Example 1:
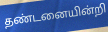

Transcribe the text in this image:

தண்டனையின்றி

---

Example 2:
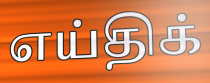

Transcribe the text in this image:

எய்திக்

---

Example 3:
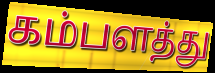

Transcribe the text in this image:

கம்பளத்து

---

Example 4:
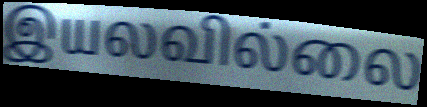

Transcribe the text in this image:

இயலவில்லை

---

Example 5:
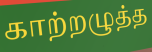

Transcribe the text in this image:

காற்றழுத்த